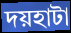
দয়হাটা